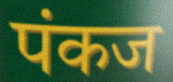
पंकज